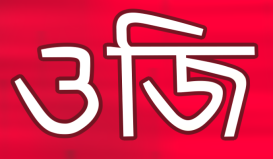
ওজি